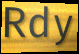
Rdy